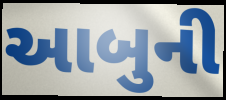
આબુની